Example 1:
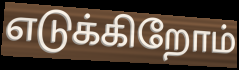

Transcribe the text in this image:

எடுக்கிறோம்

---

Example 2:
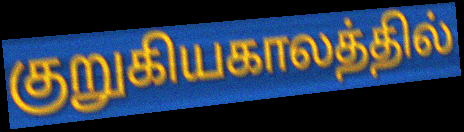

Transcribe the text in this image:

குறுகியகாலத்தில்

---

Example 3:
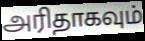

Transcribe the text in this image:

அரிதாகவும்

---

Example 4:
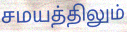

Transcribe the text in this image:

சமயத்திலும்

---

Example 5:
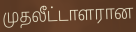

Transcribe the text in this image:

முதலீட்டாளரான